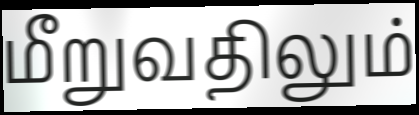
மீறுவதிலும்